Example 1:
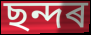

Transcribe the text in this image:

ছন্দৰ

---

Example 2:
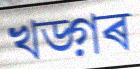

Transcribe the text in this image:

খড়্গৰ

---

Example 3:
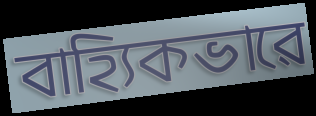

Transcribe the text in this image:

বাহ্যিকভাৱে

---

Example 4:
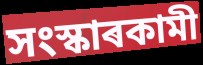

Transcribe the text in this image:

সংস্কাৰকামী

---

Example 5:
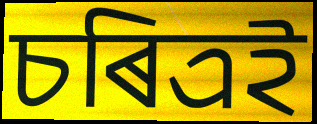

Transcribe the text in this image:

চৰিত্ৰই